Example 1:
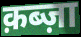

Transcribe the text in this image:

क़ब्ज़ा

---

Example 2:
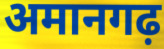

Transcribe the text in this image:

अमानगढ़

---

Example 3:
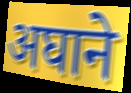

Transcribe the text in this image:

अघाने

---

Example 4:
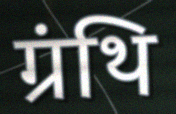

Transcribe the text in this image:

ग्रंथि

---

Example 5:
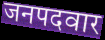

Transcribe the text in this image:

जनपदवार